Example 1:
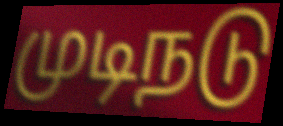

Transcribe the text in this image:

முடிநடு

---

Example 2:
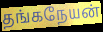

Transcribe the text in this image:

தங்கநேயன்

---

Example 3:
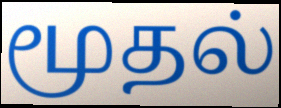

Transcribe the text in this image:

மூதல்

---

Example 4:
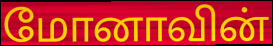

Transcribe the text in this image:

மோனாவின்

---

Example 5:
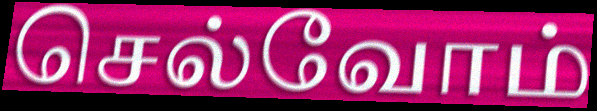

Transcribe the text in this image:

செல்வோம்